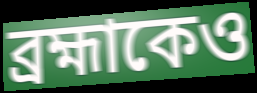
ব্রহ্মাকেও